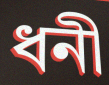
ধনী